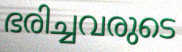
ഭരിച്ചവരുടെ